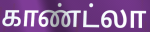
காண்ட்லா